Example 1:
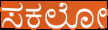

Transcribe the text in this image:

ಸಕಲೋ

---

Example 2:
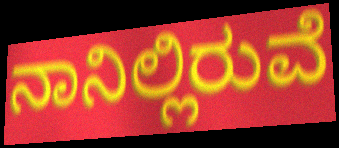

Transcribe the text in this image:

ನಾನಿಲ್ಲಿರುವೆ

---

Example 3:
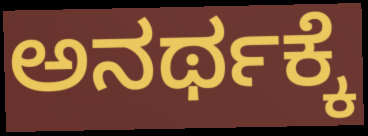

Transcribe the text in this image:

ಅನರ್ಥಕ್ಕೆ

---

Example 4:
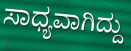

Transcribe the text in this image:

ಸಾಧ್ಯವಾಗಿದ್ದು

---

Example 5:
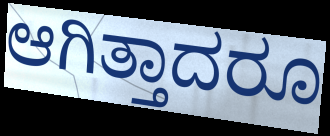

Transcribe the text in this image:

ಆಗಿತ್ತಾದರೂ